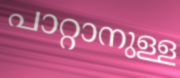
പാറ്റാനുള്ള